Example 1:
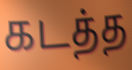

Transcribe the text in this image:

கடத்த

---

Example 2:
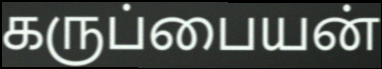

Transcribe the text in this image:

கருப்பையன்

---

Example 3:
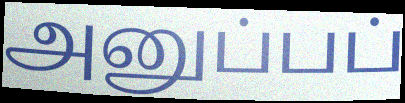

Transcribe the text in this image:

அனுப்பப்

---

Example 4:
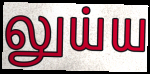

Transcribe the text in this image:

லுய்ய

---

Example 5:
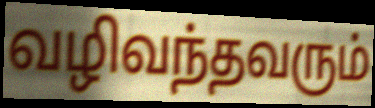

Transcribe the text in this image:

வழிவந்தவரும்